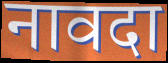
नावदा